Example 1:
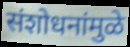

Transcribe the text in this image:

संशोधनांमुळे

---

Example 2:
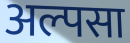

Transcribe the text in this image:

अल्पसा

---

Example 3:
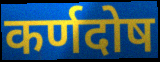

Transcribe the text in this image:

कर्णदोष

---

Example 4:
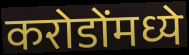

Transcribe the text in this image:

करोडोंमध्ये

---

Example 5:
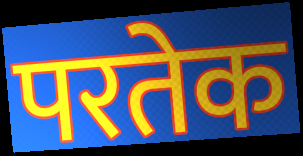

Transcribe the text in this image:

परतेक